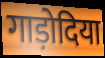
गाड़ोदिया